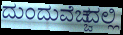
ದುಂದುವೆಚ್ಚದಲ್ಲಿ